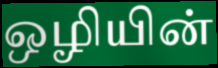
ஒழியின்